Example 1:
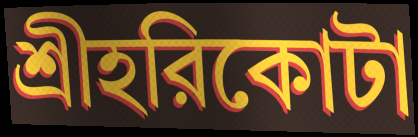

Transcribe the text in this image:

শ্রীহরিকোটা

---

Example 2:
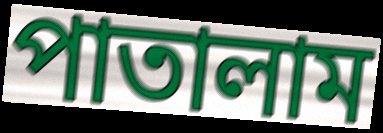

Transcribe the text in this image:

পাতালাম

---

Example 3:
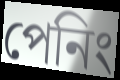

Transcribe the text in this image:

পেনিং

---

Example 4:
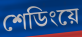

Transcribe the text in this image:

শেডিংয়ে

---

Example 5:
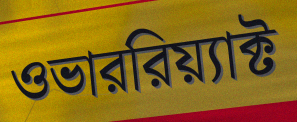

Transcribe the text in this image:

ওভাররিয়্যাক্ট